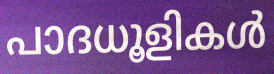
പാദധൂളികൾ